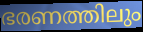
ഭരണത്തിലും